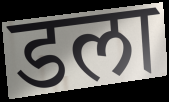
डला